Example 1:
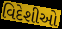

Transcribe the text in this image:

વિદેશીઓ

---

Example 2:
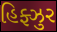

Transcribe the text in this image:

હિફ્ઝુર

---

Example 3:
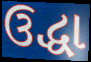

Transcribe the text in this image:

ઉદ્ધા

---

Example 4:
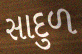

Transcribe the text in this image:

સાદુળ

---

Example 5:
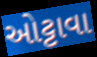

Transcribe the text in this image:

ઓટ્ટાવા